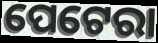
ପେଟେରା